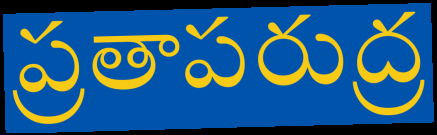
ప్రతాపరుద్ర